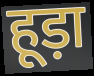
हूड़ा